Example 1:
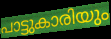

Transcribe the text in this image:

പാട്ടുകാരിയും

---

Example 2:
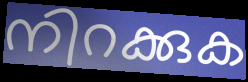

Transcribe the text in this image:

നിറക്കുക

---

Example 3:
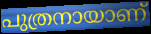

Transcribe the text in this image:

പുത്രനായാണ്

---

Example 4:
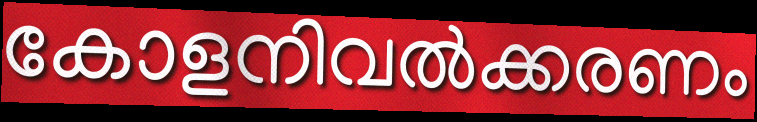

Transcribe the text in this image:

കോളനിവൽക്കരണം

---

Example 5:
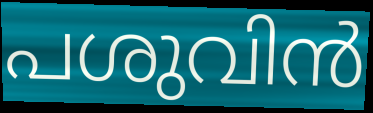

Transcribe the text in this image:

പശുവിൻ